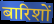
बारिशों